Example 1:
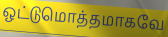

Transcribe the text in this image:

ஒட்டுமொத்தமாகவே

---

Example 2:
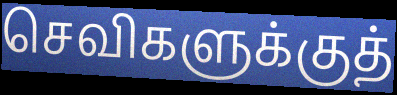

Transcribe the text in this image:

செவிகளுக்குத்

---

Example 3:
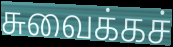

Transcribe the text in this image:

சுவைக்கச்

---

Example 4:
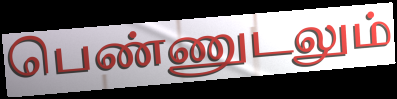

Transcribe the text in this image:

பெண்ணுடலும்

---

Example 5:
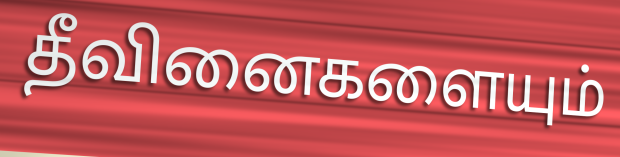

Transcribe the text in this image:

தீவினைகளையும்